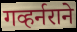
गव्हर्नराने